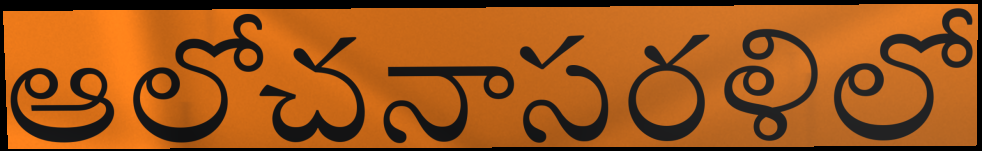
ఆలోచనాసరళిలో